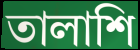
তালাশি